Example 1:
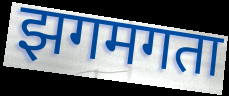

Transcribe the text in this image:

झगमगता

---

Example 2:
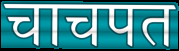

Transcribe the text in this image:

चाचपत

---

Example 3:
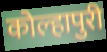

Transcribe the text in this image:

कोल्हापुरी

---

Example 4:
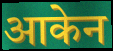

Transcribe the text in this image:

आकेन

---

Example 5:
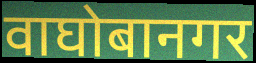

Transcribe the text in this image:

वाघोबानगर